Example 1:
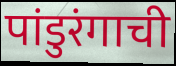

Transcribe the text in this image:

पांडुरंगाची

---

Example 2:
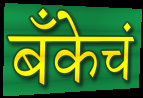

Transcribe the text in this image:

बॅंकेचं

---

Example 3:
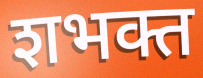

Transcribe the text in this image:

शभक्त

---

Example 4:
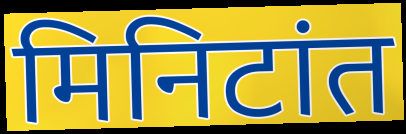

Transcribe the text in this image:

मिनिटांत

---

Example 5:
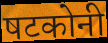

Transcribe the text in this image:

षटकोनी